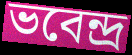
ভবেন্দ্ৰ